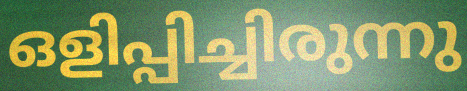
ഒളിപ്പിച്ചിരുന്നു